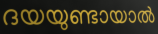
ദയയുണ്ടായാൽ